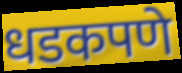
धडकपणे